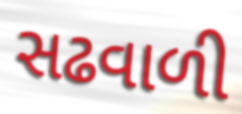
સઢવાળી